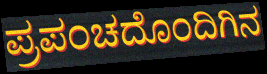
ಪ್ರಪಂಚದೊಂದಿಗಿನ